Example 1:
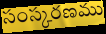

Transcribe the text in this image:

సంస్కరణము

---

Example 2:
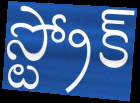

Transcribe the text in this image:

స్ట్రోక్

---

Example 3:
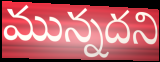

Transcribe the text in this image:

మున్నదని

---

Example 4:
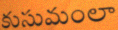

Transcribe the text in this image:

కుసుమంలా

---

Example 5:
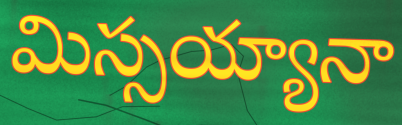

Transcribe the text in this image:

మిస్సయ్యానా